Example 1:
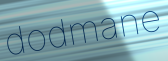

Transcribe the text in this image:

dodmane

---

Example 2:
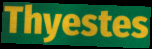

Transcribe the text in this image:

Thyestes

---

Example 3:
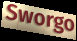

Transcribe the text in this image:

Sworgo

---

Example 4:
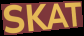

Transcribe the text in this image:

SKAT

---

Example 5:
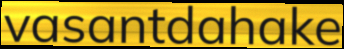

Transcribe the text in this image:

vasantdahake